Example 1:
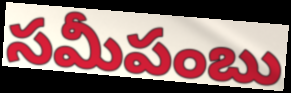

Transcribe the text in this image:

సమీపంబు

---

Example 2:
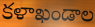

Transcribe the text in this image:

కళాఖండాల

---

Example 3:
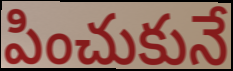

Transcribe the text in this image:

పించుకునే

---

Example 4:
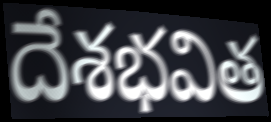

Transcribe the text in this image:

దేశభవిత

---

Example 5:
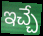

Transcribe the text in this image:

ఇచ్చే